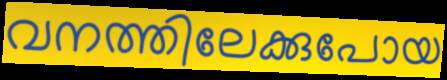
വനത്തിലേക്കുപോയ